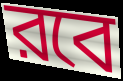
রবে